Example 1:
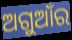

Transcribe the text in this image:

ଅଗୁଆଁର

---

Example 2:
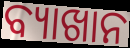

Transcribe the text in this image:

ବ୍ୟାଖାନ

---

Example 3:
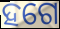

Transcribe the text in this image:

ହଗେ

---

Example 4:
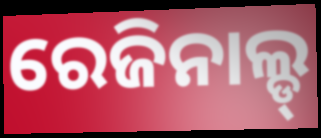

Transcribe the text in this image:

ରେଜିନାଲ୍ଡ୍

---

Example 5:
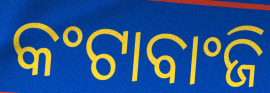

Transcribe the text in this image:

କଂଟାବାଂଜି